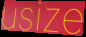
usize